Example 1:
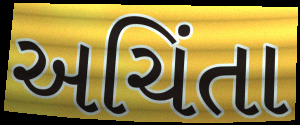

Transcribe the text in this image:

અચિંતા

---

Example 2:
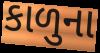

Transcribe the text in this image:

કાળુના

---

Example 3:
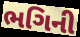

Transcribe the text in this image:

ભગિની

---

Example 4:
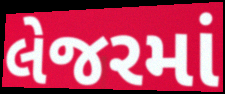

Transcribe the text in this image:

લેજરમાં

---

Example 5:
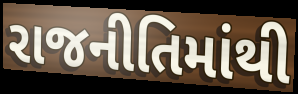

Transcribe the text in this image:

રાજનીતિમાંથી